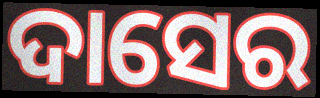
ଦାସେର